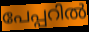
പേപ്പറിൽ